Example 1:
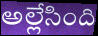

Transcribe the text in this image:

అల్లేసింది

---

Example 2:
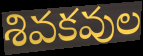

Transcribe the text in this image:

శివకవుల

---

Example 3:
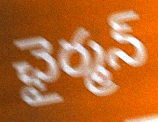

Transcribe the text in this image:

ఛైర్మన్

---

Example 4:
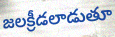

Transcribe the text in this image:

జలక్రీడలాడుతూ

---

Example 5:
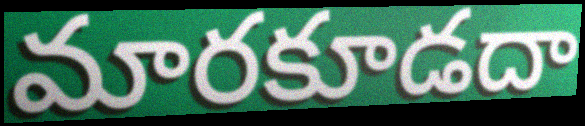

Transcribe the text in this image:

మారకూడదా